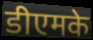
डीएमके